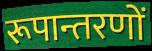
रूपान्तरणों